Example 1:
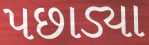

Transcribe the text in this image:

પછાડ્યા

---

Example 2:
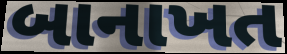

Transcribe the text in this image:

બાનાખત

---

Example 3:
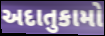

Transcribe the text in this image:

અદાતુકામો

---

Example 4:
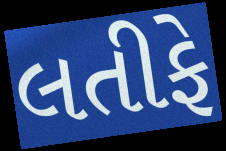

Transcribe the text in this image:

લતીફે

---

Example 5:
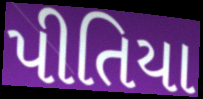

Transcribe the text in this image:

પીતિયા